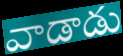
వాడాడు